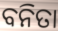
ବନିତା